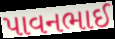
પાવનભાઈ